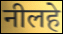
नीलहे